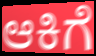
ಆಕಿಗೆ